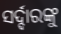
ସର୍ଦ୍ଦାରଙ୍କୁ